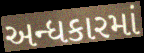
અન્ધકારમાં